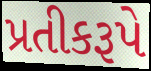
પ્રતીકરૂપે